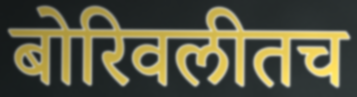
बोरिवलीतच